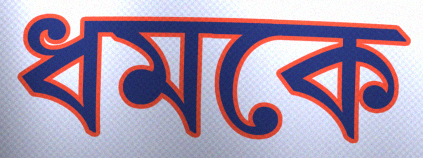
ধমকে